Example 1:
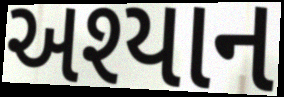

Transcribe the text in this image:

અશ્યાન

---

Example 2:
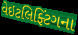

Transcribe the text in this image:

વેઇટલિફ્ટિંગના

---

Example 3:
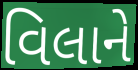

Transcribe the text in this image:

વિલાને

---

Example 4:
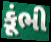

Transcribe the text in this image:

કૂંભી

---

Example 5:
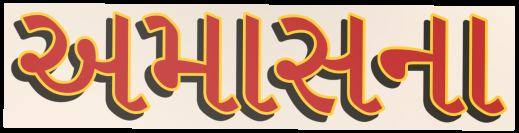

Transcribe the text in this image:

અમાસના